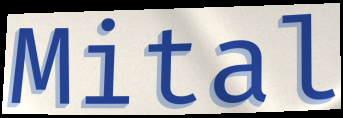
Mital